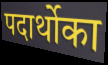
पदार्थोका